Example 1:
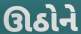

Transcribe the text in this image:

ઊઠોને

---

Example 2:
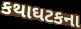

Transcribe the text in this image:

કથાઘટકના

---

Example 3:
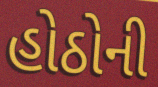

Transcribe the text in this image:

હોઠોની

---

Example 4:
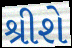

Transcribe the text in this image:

શ્રીશે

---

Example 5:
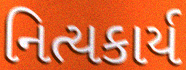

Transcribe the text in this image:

નિત્યકાર્ય